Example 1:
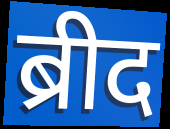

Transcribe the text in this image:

ब्रीद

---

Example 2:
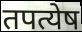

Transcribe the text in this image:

तपत्येष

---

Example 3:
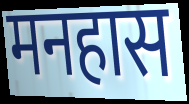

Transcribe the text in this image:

मनहास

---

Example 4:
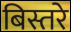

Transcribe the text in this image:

बिस्तरे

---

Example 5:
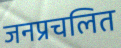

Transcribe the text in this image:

जनप्रचलित